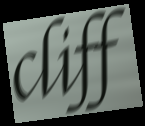
cliff